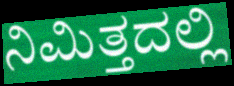
ನಿಮಿತ್ತದಲ್ಲಿ